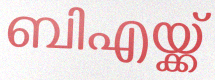
ബിഎയ്ക്ക്